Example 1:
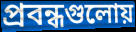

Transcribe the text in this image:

প্রবন্ধগুলোয়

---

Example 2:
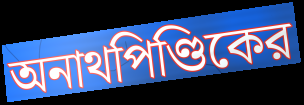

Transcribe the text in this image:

অনাথপিণ্ডিকের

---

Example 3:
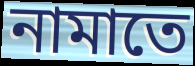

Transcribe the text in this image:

নামাতে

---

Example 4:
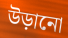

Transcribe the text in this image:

উড়ানো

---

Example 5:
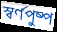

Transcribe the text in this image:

স্বর্ণপুষ্প